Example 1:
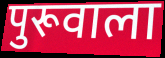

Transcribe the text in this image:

पुरूवाला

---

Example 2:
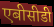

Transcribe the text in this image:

एबीसीडी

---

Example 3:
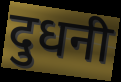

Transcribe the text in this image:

दुधनी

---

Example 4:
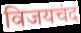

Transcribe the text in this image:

विजयचंद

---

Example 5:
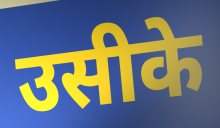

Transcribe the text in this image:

उसीके